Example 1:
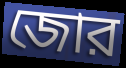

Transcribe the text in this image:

জোর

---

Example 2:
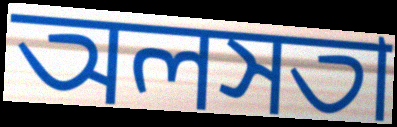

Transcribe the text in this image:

অলসতা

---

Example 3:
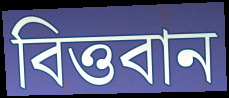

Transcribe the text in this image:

বিত্তবান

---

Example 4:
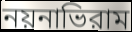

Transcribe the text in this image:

নয়নাভিরাম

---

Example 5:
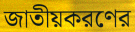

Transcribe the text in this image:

জাতীয়করণের